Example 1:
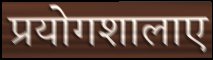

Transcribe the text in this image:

प्रयोगशालाए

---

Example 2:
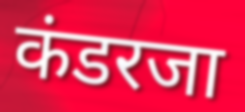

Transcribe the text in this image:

कंडरजा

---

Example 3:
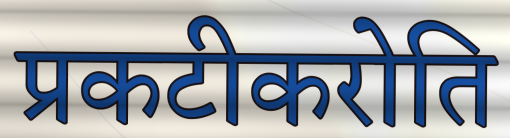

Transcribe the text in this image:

प्रकटीकरोति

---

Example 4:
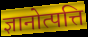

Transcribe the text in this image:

ज्ञानोत्पत्ति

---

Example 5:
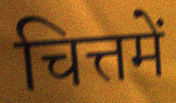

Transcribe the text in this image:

चित्तमें